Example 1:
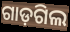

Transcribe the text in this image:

ଗାଡ଼ଗିଲ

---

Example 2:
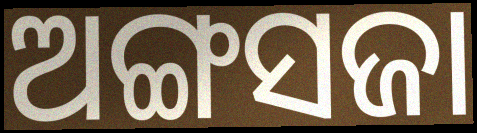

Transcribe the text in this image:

ଅଙ୍ଗସଜା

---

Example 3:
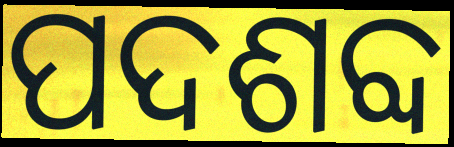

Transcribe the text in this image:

ପଦଶବ୍ଦ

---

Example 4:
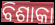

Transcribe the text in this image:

ବିଶାକା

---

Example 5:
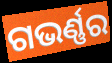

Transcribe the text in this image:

ଗଭର୍ଣ୍ଣର